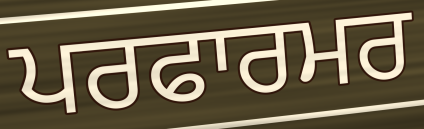
ਪਰਫਾਰਮਰ